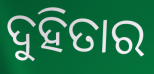
ଦୁହିତାର